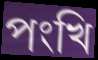
পংখি